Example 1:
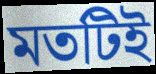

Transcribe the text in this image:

মতটিই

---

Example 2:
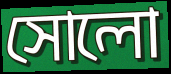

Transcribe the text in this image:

সোলো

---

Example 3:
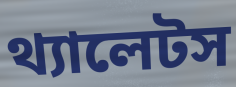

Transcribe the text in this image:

থ্যালেটস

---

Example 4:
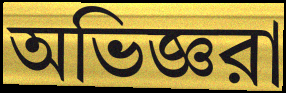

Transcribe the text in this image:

অভিজ্ঞরা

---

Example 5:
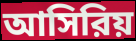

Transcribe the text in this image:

আসিরিয়